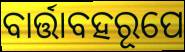
ବାର୍ତ୍ତାବହରୂପେ